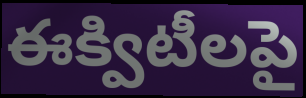
ఈక్విటీలపై